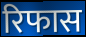
रिफास